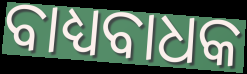
ବାଧ୍ୟବାଧକ